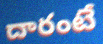
దారంటే